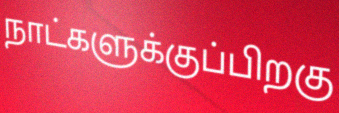
நாட்களுக்குப்பிறகு